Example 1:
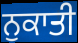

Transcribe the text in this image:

ਨੁਕਾਤੀ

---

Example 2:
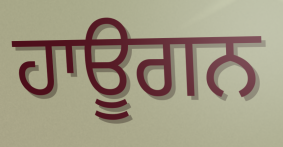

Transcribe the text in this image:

ਹਾਊਗਨ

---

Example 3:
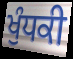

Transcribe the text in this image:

ਖੁੰਧਕੀ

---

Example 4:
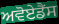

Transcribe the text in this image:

ਅਵੋਏਡੈਂਸ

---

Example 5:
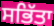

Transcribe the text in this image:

ਸਭਿੱਤਾ